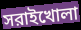
সরাইখোলা